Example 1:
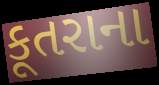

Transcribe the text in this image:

કૂતરાના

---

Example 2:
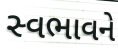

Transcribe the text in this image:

સ્વભાવને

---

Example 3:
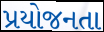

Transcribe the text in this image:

પ્રયોજનતા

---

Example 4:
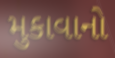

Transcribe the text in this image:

મુકાવાનો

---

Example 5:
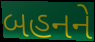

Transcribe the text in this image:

બહનને